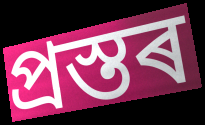
প্ৰস্তৰ